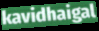
kavidhaigal